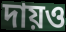
দায়ও